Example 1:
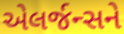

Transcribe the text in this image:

એલર્જન્સને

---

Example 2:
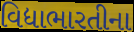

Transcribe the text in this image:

વિદ્યાભારતીના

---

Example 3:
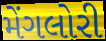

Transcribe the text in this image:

મેંગલોરી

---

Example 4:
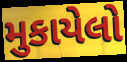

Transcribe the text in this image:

મુકાયેલો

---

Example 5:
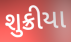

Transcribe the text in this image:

શુક્રીયા